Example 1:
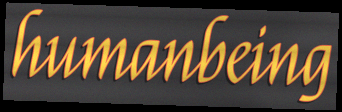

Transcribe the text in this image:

humanbeing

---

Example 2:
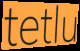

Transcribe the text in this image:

tetlu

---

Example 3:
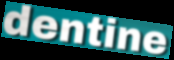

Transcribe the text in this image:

dentine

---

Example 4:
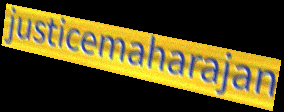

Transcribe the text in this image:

justicemaharajan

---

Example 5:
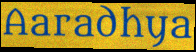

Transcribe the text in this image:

Aaradhya